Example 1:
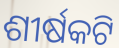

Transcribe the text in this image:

ଶୀର୍ଷକଟି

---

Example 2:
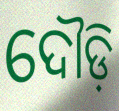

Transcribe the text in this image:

ଦୌଡ଼ି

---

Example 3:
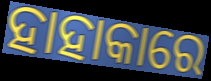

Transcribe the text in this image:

ହାହାକାରେ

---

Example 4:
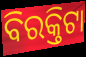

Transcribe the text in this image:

ବିରକ୍ତିଟା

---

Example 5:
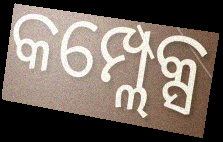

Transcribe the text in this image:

କମ୍ପ୍ଲେକ୍ସ